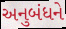
અનુબંધને